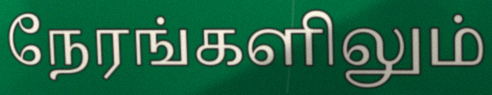
நேரங்களிலும்